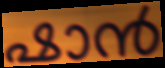
ഷാൻ